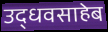
उद्धवसाहेब